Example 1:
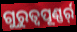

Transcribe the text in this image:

ଗୁରୁତ୍ୱପୂଣ୍ଣର୍ର୍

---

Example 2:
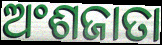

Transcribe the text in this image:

ଅଂଶଜାତା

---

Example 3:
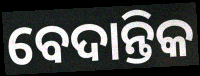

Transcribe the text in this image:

ବେଦାନ୍ତିକ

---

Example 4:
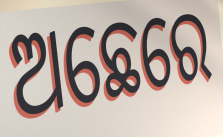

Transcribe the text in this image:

ଅଛେରେ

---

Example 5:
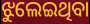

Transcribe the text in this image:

ଝୁଲେଇଥିବା